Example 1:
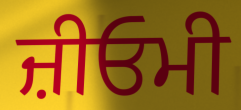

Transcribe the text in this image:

ਜ਼ੀਓਮੀ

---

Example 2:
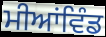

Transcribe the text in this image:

ਮੀਆਂਵਿੰਡ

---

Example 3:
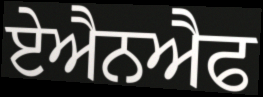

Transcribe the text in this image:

ਏਐਨਐਫ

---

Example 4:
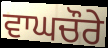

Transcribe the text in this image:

ਵਾਘਚੌਰੇ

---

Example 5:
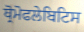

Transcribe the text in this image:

ਥ੍ਰੋਮੋਫਲੇਬਿਟਿਸ